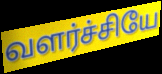
வளர்ச்சியே